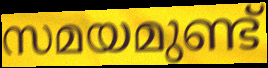
സമയമുണ്ട്